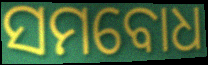
ସମବୋଧ